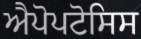
ਐਪੋਪਟੋਸਿਸ